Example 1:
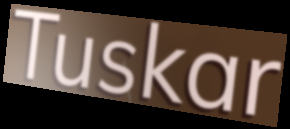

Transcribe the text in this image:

Tuskar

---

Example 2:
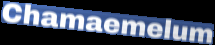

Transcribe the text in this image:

Chamaemelum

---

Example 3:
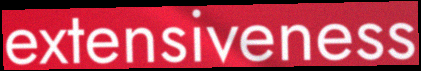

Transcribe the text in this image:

extensiveness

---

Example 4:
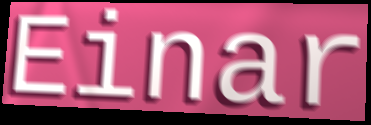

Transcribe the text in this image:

Einar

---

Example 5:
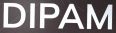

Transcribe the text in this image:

DIPAM